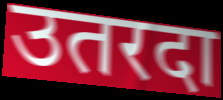
उतरदा